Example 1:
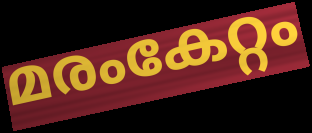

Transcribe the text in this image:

മരംകേറ്റം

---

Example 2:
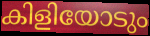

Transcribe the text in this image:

കിളിയോടും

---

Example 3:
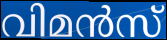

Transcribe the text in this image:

വിമൻസ്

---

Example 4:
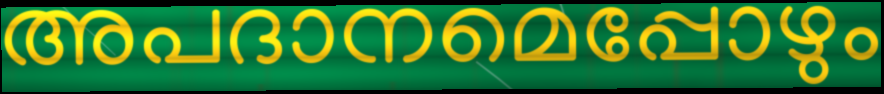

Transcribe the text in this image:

അപദാനമെപ്പോഴും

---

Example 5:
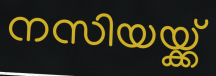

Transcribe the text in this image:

നസിയയ്ക്ക്